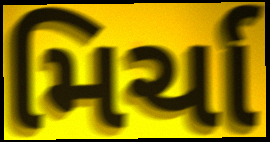
મિર્ચા